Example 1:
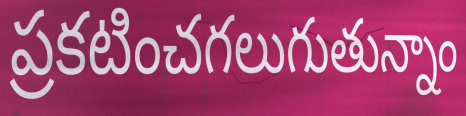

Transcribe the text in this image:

ప్రకటించగలుగుతున్నాం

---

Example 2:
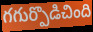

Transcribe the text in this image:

గగుర్పొడిచింది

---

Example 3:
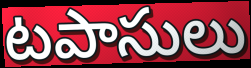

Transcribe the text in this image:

టపాసులు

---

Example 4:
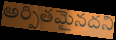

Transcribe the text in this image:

అర్పితమైనదని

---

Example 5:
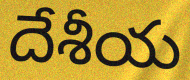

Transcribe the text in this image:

దేశీయ